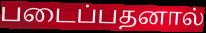
படைப்பதனால்